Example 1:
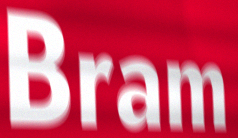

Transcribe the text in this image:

Bram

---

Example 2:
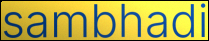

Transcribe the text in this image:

sambhadi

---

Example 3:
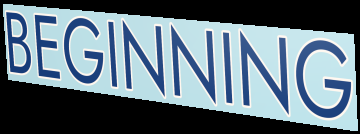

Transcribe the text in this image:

BEGINNING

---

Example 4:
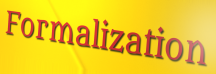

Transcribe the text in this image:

Formalization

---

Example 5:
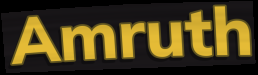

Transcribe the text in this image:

Amruth